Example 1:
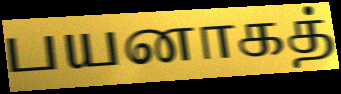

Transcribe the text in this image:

பயனாகத்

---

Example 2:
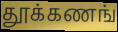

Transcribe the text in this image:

தூக்கணங்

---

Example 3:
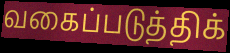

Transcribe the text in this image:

வகைப்படுத்திக்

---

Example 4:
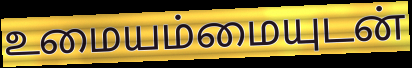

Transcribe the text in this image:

உமையம்மையுடன்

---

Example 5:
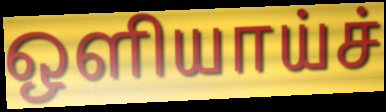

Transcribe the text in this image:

ஒளியாய்ச்